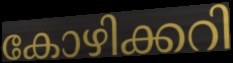
കോഴിക്കറി